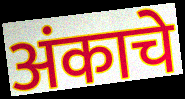
अंकाचे